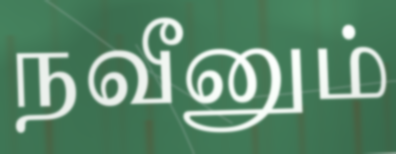
நவீனும்